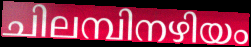
ചിലമ്പിനഴിയം